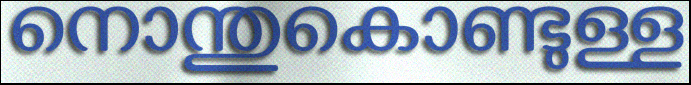
നൊന്തുകൊണ്ടുള്ള